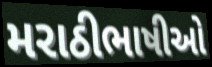
મરાઠીભાષીઓ